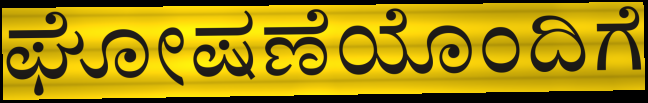
ಘೋಷಣೆಯೊಂದಿಗೆ